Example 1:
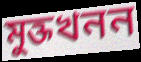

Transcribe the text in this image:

মুক্তখনন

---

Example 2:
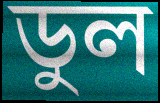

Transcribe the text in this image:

ডুল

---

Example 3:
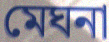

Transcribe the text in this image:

মেঘনা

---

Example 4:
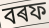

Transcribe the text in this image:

বৰফ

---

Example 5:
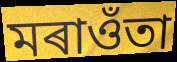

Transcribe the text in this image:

মৰাওঁতা